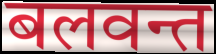
बलवन्त